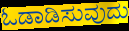
ಓಡಾಡಿಸುವುದು